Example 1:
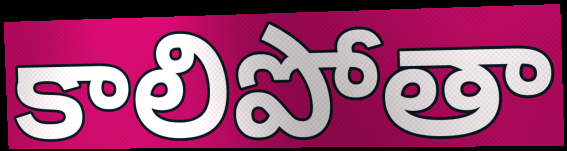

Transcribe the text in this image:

కాలిపోతా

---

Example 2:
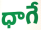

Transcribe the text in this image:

ధాగే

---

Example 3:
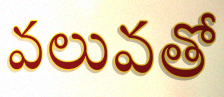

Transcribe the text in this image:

వలువతో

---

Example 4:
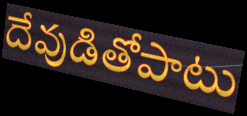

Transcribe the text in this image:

దేవుడితోపాటు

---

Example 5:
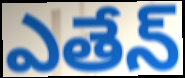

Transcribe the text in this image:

ఎతేన్